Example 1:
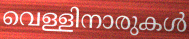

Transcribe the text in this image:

വെള്ളിനാരുകൾ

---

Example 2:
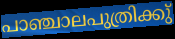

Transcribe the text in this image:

പാഞ്ചാലപുത്രിക്കു്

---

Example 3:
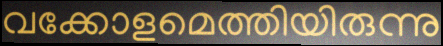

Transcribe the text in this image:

വക്കോളമെത്തിയിരുന്നു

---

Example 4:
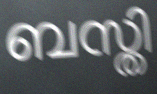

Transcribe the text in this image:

ബസ്തി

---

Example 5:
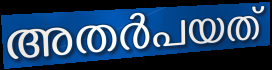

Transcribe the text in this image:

അതർപയത്